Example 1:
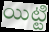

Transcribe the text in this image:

యిట్టి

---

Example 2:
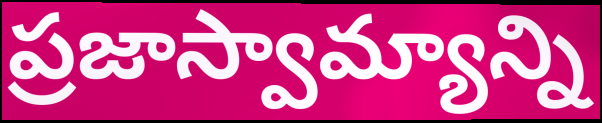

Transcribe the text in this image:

ప్రజాస్వామ్యాన్ని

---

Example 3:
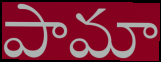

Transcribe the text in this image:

పామా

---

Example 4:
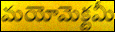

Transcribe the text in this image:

మయోమెక్టమీ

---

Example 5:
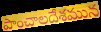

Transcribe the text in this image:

పాంచాలదేశమున